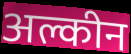
अल्कीन